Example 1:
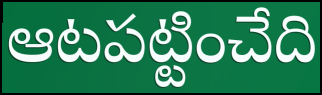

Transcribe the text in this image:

ఆటపట్టించేది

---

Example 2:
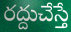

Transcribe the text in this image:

రద్దుచేస్తే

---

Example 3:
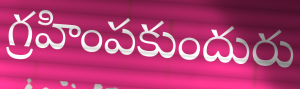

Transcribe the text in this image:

గ్రహింపకుందురు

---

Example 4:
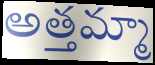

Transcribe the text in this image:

అత్తమ్మా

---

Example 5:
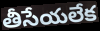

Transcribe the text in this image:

తీసేయలేక